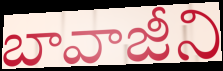
బావాజీని